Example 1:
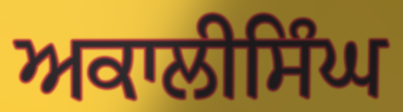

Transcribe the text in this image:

ਅਕਾਲੀਸਿੰਘ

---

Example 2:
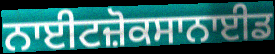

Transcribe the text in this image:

ਨਾਈਟਜ਼ੋਕਸਾਨਾਈਡ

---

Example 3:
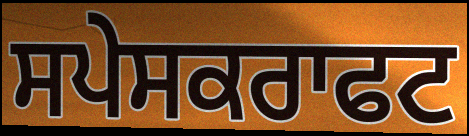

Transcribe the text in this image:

ਸਪੇਸਕਰਾਫਟ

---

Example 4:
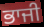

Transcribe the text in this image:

ਭਾਜੀ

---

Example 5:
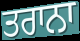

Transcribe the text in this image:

ਤਰਾਨਾ